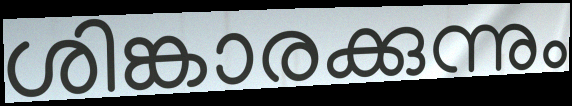
ശിങ്കാരക്കുന്നും